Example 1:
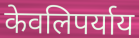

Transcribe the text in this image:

केवलिपर्याय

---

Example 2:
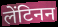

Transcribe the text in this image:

लेंटिनन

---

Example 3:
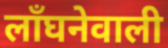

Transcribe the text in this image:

लाँघनेवाली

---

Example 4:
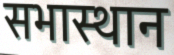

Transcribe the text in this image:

सभास्थान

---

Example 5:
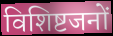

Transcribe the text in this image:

विशिष्टजनों